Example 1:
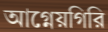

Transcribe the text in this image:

আগ্নেয়গিরি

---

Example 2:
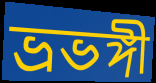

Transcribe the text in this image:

ভ্রভঙ্গী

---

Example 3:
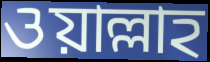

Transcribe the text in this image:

ওয়াল্লাহ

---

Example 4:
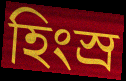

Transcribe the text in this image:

হিংস্র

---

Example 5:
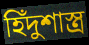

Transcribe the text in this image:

হিঁদুশাস্ত্র